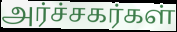
அர்ச்சகர்கள்